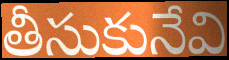
తీసుకునేవి